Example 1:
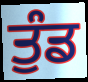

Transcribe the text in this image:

ਤੁੰਡ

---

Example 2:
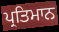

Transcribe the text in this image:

ਪ੍ਰਤਿਮਾਨ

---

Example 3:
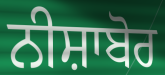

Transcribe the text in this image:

ਨੀਸ਼ਾਬੋਰ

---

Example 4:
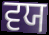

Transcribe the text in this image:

ਵਯ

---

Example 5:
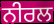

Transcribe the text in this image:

ਨੀਰਲ